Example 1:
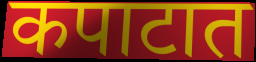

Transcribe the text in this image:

कपाटात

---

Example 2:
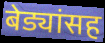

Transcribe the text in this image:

बेड्यांसह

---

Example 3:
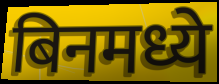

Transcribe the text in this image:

बिनमध्ये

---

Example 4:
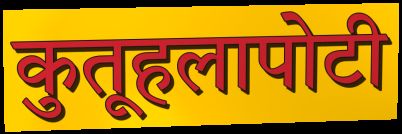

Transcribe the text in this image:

कुतूहलापोटी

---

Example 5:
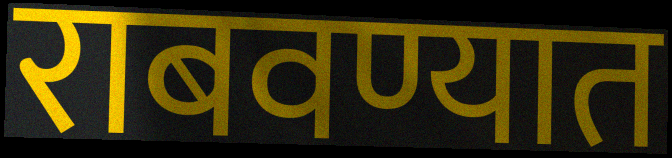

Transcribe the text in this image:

राबवण्यात